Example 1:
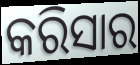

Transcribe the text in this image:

କରିସାର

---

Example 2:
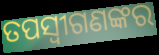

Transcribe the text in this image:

ତପସ୍ୱୀଗଣଙ୍କର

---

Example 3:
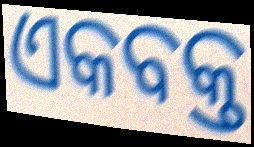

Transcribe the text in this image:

ଏକବକ୍ତ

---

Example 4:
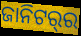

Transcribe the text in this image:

ଜାନିଟର୍‌ର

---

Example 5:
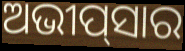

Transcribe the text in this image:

ଅଭୀପ୍‌ସାର